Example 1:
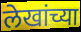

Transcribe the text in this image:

लेखांच्या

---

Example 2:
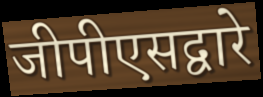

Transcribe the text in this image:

जीपीएसद्वारे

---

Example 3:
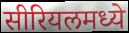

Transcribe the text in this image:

सीरियलमध्ये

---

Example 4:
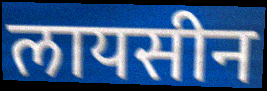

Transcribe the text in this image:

लायसीन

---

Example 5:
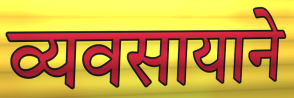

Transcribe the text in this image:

व्यवसायाने